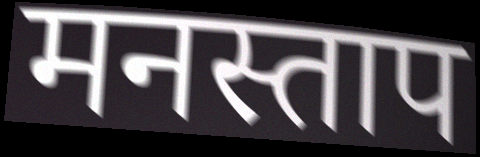
मनस्ताप